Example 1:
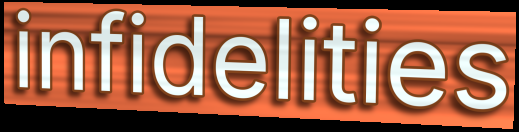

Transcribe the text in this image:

infidelities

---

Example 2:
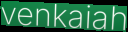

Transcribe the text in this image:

venkaiah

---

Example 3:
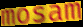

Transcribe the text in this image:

mosam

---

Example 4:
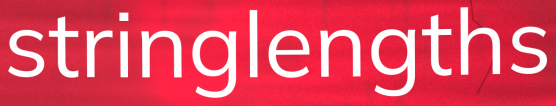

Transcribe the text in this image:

stringlengths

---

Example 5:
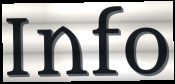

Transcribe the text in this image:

Info